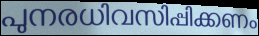
പുനരധിവസിപ്പിക്കണം